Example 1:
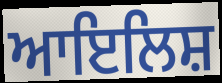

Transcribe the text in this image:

ਆਇਲਿਸ਼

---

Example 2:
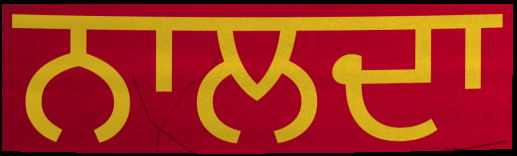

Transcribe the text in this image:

ਨਾਲਦਾ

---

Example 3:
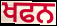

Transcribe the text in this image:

ਖਫਨ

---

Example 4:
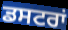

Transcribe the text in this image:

ਡਸਟਰਾਂ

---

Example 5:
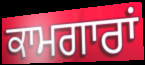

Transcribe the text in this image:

ਕਾਮਗਾਰਾਂ